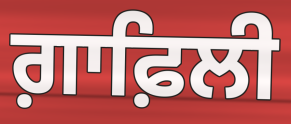
ਗ਼ਾਫ਼ਿਲੀ